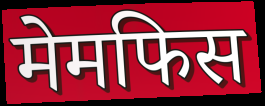
मेमफिस